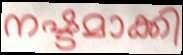
നഷ്ടമാക്കി